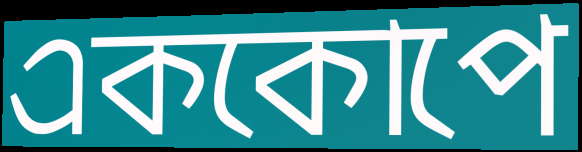
এককোপে